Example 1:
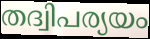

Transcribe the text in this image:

തദ്വിപര്യയം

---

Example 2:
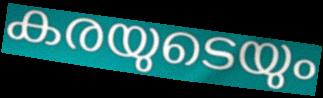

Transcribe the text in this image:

കരയുടെയും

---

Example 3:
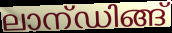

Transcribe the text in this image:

ലാന്ഡിങ്ങ്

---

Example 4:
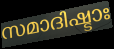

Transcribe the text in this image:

സമാദിഷ്ടാഃ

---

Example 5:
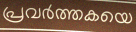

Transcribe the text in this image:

പ്രവർത്തകയെ